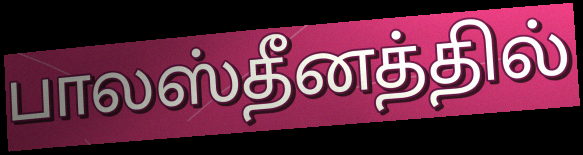
பாலஸ்தீனத்தில்